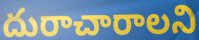
దురాచారాలని